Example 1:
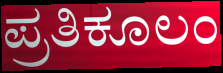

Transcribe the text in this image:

ಪ್ರತಿಕೂಲಂ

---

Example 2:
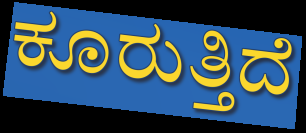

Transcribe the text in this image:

ಕೂರುತ್ತಿದೆ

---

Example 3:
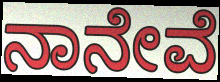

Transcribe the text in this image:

ನಾನೇವೆ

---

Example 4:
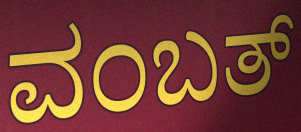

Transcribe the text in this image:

ವಂಬತ್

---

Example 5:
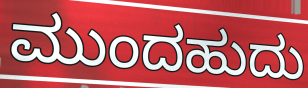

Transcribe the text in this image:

ಮುಂದಹುದು